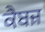
ਕੈਬਜ਼